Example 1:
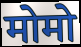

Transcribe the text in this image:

मोमो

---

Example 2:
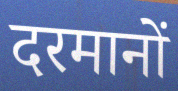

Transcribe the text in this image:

दरमानों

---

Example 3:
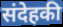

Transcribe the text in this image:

संदेहकी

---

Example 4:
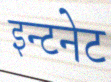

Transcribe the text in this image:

इन्टनेट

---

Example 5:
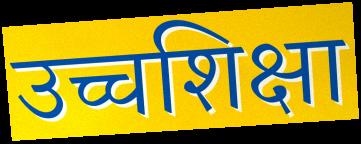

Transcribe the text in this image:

उच्चशिक्षा